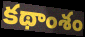
కథాంశం